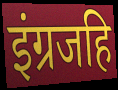
इंग्रजहि